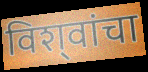
विश्वांचा